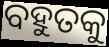
ବହୁତକୁ